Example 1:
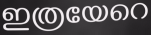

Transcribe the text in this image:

ഇത്രയേറെ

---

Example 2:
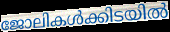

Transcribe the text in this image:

ജോലികൾക്കിടയിൽ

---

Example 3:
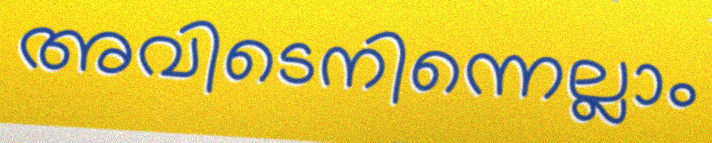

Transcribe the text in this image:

അവിടെനിന്നെല്ലാം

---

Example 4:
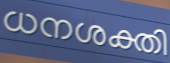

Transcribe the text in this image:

ധനശക്തി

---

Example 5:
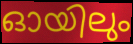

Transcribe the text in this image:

ഓയിലും